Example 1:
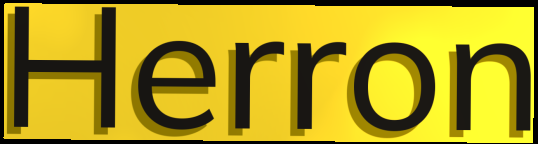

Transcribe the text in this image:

Herron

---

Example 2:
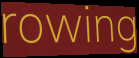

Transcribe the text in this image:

rowing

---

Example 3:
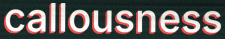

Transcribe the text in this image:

callousness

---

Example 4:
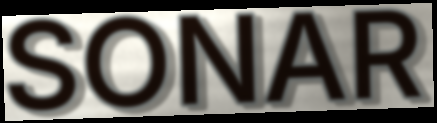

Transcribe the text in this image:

SONAR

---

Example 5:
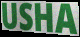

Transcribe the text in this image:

USHA